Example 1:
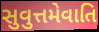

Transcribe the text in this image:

સુવુત્તમેવાતિ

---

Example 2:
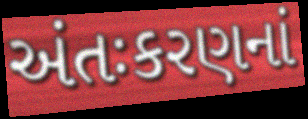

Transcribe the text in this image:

અંતઃકરણનાં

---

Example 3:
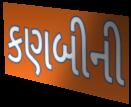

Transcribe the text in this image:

કણબીની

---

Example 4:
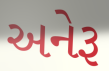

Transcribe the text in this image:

અનેરૂ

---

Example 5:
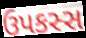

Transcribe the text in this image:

ઉપકસ્સ